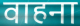
वाहना